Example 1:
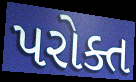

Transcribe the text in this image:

પરોક્ત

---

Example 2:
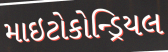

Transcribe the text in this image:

માઇટોકોન્ડ્રિયલ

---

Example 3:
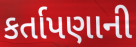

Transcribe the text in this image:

કર્તાપણાની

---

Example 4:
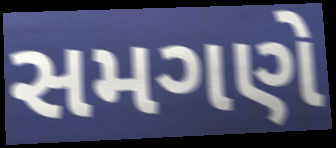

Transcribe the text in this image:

સમગણે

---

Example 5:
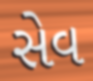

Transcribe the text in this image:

સેવ